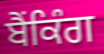
ਬੈਂਕਿੰਗ